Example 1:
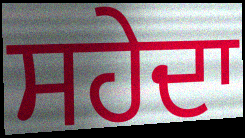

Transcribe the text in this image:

ਸਹੇਦਾ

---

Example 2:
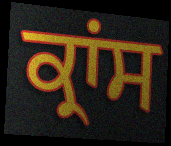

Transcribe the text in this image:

ਕ੍ਰਾਂਸ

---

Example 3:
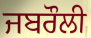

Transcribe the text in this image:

ਜਬਰੌਲੀ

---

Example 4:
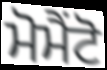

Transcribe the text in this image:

ਮੋਮੈਂਟੋ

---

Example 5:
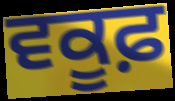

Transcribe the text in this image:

ਵਕੂਫ਼